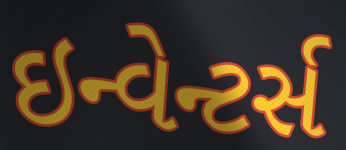
ઇન્વેન્ટર્સ